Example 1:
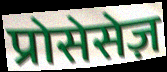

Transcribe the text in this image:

प्रोसेसेज़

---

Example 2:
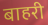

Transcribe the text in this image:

बाहरी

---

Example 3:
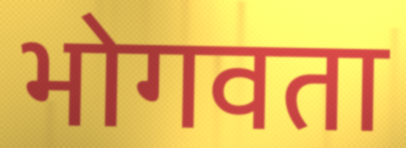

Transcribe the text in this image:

भोगवता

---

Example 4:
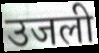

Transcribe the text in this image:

उजली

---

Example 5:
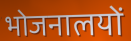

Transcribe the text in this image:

भोजनालयों